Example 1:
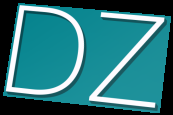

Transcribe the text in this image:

DZ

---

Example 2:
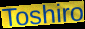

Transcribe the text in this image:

Toshiro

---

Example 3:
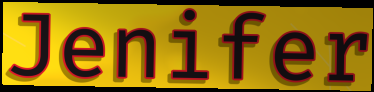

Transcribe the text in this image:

Jenifer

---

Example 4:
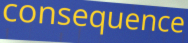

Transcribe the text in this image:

consequence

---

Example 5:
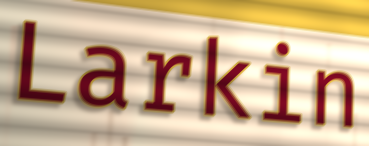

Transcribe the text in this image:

Larkin